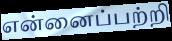
என்னைப்பற்றி